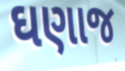
ઘણાજ